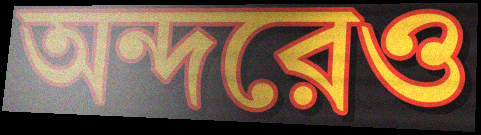
অন্দরেও